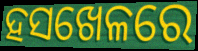
ହସଖେଳରେ